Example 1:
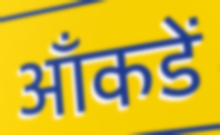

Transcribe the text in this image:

आँकडें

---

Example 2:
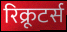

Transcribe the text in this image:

रिक्रूटर्स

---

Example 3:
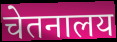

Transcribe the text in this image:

चेतनालय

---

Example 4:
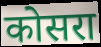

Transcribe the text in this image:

कोसरा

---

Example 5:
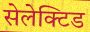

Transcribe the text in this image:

सेलेक्टिड